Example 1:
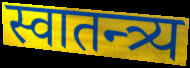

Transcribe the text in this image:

स्वातन्त्र्य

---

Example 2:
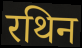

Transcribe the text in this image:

रथिन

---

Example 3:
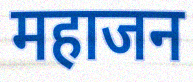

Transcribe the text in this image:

महाजन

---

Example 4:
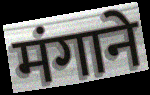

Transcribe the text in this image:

मंगाने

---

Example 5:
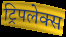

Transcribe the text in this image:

ट्रिपलेक्स